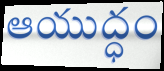
ఆయుద్ధం